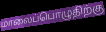
மாலைப்பொழுதிற்கு